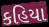
કહિયા